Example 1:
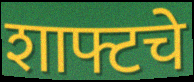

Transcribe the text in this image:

शाफ्टचे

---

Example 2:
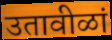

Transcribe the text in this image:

उतावीळां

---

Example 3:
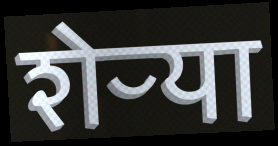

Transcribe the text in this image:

शेऱ्या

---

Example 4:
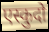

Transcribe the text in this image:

एस्कुदो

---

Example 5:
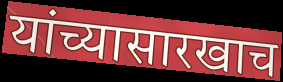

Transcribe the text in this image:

यांच्यासारखाच